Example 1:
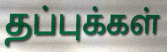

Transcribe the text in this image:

தப்புக்கள்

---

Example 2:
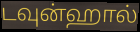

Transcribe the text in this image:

டவுன்ஹால்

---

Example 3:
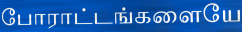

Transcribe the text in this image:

போராட்டங்களையே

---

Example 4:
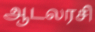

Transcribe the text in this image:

ஆடலரசி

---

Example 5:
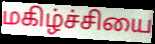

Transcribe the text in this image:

மகிழ்ச்சியை